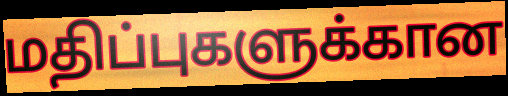
மதிப்புகளுக்கான